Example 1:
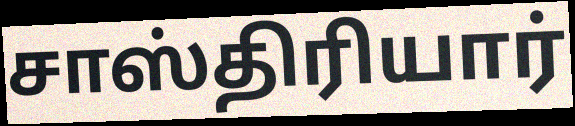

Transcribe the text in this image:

சாஸ்திரியார்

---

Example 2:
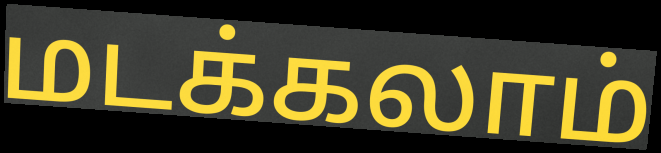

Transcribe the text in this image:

மடக்கலாம்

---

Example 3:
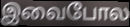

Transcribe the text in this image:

இவைபோல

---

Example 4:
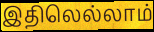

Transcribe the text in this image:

இதிலெல்லாம்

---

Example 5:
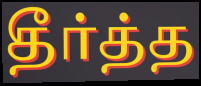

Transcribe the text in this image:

தீர்த்த